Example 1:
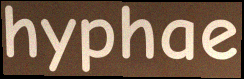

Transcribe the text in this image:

hyphae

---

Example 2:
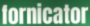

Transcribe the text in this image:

fornicator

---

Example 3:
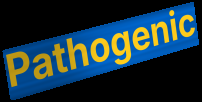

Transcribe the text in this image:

Pathogenic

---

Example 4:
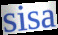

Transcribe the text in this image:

sisa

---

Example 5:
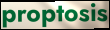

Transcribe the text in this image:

proptosis